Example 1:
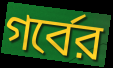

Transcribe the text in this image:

গর্বের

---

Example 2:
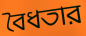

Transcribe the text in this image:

বৈধতার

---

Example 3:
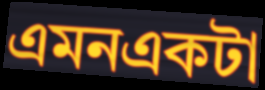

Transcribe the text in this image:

এমনএকটা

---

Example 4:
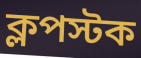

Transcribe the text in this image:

ক্লপস্টক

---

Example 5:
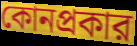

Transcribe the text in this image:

কোনপ্রকার